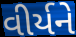
વીર્યને